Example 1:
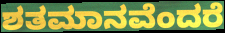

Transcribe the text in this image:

ಶತಮಾನವೆಂದರೆ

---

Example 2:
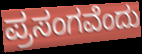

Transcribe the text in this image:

ಪ್ರಸಂಗವೆಂದು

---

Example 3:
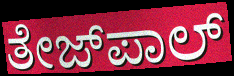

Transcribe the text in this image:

ತೇಜ್‌ಪಾಲ್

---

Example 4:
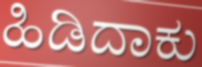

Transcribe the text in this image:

ಹಿಡಿದಾಕು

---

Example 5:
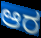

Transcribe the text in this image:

ಆರ